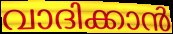
വാദിക്കാൻ